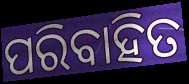
ପରିବାହିତ